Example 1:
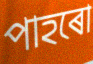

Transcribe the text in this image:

পাহৰো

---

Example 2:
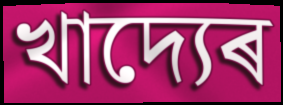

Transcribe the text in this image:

খাদ্যেৰ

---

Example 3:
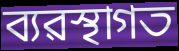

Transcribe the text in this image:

ব্যৱস্থাগত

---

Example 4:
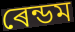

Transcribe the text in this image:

ৰেন্ডম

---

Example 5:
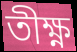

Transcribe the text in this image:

তীক্ষ্ণ